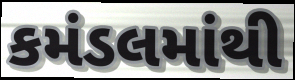
કમંડલમાંથી